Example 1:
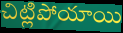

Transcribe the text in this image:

చిట్లిపోయాయి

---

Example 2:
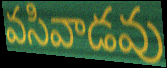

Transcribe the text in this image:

వసివాడవు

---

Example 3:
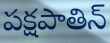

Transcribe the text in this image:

పక్షపాతిన్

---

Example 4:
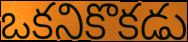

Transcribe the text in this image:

ఒకనికొకడు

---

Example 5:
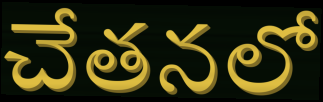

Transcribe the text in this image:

చేతనలో